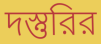
দস্তুরির